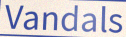
Vandals